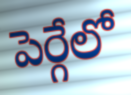
పెర్గేలో